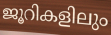
ജൂറികളിലും